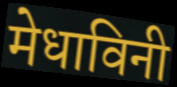
मेधाविनी